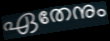
ഏതേനും